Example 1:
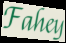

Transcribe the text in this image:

Fahey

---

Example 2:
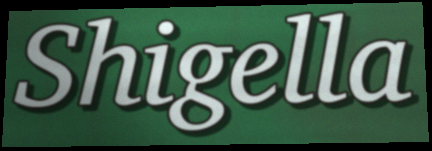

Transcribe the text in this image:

Shigella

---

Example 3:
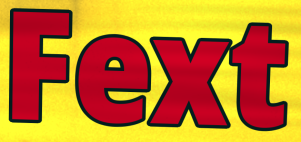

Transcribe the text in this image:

Fext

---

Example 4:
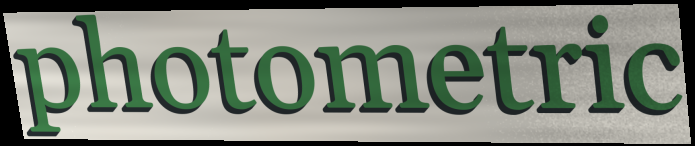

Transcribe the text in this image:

photometric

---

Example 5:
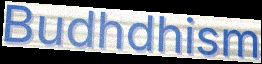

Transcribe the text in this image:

Budhdhism